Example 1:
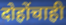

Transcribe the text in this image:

दोहोंचाही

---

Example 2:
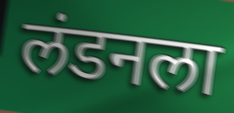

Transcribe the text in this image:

लंडनला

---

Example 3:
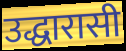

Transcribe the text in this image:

उद्धारासी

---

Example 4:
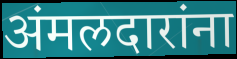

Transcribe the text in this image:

अंमलदारांना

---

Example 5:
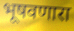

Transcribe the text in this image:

भूषवणारा